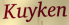
Kuyken